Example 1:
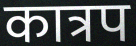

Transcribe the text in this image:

कात्रप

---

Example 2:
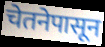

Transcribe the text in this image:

चेतनेपासून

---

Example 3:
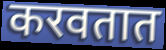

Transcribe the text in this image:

करवतात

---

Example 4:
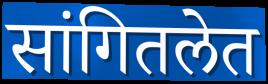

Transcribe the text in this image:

सांगितलेत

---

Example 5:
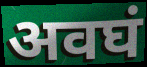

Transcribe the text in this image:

अवघं